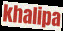
khalipa